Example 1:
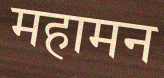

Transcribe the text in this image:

महामन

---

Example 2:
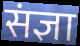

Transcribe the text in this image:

संज्ञा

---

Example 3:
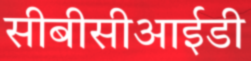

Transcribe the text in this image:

सीबीसीआईडी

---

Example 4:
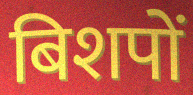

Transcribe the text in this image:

बिशपों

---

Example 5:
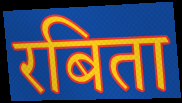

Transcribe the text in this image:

रबिता